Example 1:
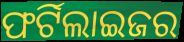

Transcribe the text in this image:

ଫର୍ଟିଲାଇଜର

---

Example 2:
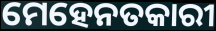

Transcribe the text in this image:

ମେହେନତକାରୀ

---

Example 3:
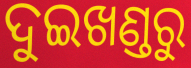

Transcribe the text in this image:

ଦୁଇଖଣ୍ଡରୁ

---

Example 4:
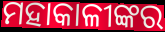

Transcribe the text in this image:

ମହାକାଳୀଙ୍କର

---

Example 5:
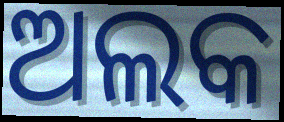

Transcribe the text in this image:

ଅଲକ